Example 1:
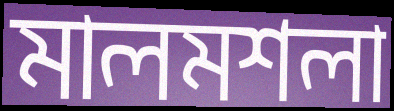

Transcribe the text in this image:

মালমশলা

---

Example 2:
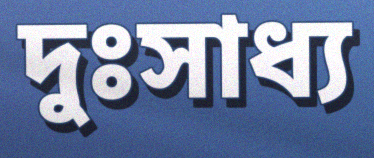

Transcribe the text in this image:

দুঃসাধ্য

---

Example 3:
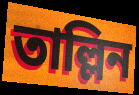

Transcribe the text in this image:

তাল্লিন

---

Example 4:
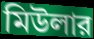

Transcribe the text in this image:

মিউলার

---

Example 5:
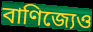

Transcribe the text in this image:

বাণিজ্যেও